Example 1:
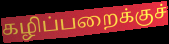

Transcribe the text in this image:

கழிப்பறைக்குச்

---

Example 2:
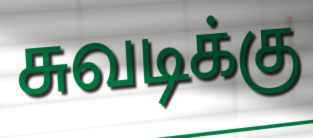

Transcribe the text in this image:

சுவடிக்கு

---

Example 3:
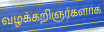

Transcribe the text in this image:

வழக்கறிஞர்களாக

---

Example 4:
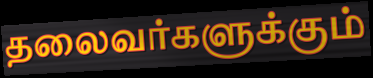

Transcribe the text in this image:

தலைவர்களுக்கும்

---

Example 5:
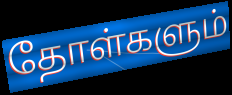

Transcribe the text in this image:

தோள்களும்